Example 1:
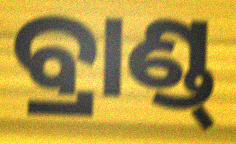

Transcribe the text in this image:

ବ୍ରାଣ୍ଡ୍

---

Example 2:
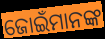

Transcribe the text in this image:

ଜୋଇଁମାନଙ୍କ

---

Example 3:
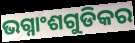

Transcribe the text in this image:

ଭଗ୍ନାଂଶଗୁଡିକର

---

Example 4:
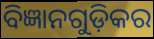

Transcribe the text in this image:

ବିଜ୍ଞାନଗୁଡ଼ିକର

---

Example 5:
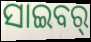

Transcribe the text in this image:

ସାଇବର୍